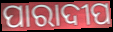
ପାରାଦୀପ